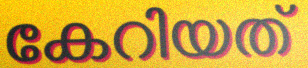
കേറിയത്